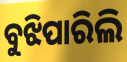
ବୁଝିପାରିଲି